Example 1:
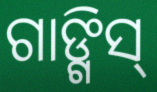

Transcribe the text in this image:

ଗାଙ୍ଗିସ୍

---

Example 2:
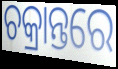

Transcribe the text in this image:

ଚକ୍ରାନ୍ତରେ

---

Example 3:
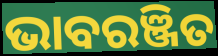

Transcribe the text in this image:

ଭାବରଞ୍ଜିତ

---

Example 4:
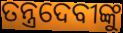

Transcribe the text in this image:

ତନ୍ତ୍ରଦେବୀଙ୍କୁ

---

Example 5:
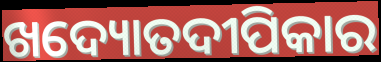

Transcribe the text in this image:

ଖଦ୍ୟୋତଦୀପିକାର